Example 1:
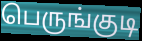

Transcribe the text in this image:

பெருங்குடி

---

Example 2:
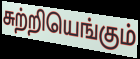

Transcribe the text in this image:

சுற்றியெங்கும்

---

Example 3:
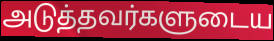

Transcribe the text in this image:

அடுத்தவர்களுடைய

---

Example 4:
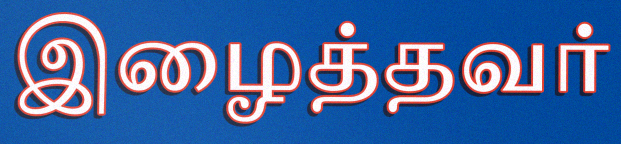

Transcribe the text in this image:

இழைத்தவர்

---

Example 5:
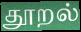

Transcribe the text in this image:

தூறல்